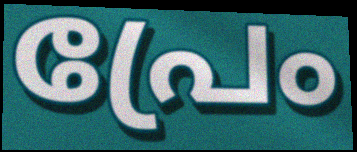
പ്രേം